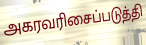
அகரவரிசைப்படுத்தி